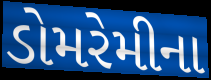
ડોમરેમીના